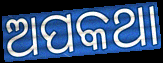
ଅପକଥା